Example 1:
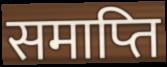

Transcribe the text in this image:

समाप्‍ति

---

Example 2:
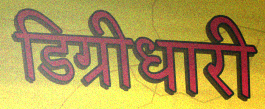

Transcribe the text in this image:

डिग्रीधारी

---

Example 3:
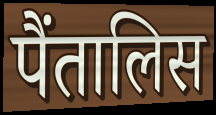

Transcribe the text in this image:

पैंतालिस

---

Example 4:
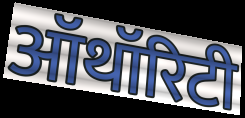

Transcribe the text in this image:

ऑथॉरिटी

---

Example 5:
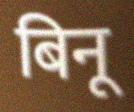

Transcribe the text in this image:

बिनू